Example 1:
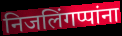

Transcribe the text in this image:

निजलिंगप्पांना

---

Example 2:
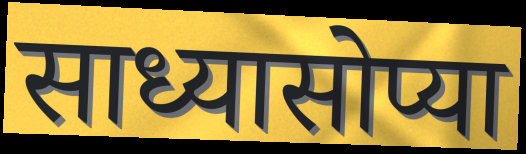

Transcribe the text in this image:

साध्यासोप्या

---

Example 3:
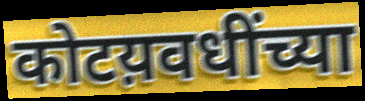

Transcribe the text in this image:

कोटय़वधींच्या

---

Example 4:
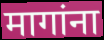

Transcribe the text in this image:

मागांना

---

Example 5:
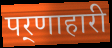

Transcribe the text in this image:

पर्णाहारी